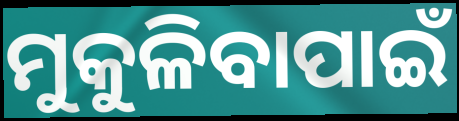
ମୁକୁଳିବାପାଇଁ